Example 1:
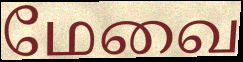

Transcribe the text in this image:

மேவை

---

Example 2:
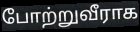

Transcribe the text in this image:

போற்றுவீராக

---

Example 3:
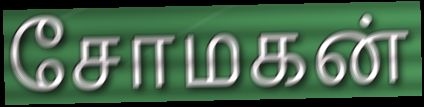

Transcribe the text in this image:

சோமகன்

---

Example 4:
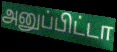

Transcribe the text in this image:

அனுப்பிட்டா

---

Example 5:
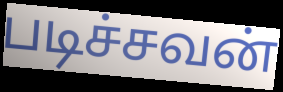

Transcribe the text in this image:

படிச்சவன்